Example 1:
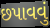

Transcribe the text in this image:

છપાવવું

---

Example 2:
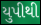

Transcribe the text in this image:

યુપીથી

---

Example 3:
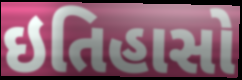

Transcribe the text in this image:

ઇતિહાસો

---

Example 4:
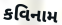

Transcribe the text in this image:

કવિનામ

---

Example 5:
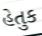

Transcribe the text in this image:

હેતુક